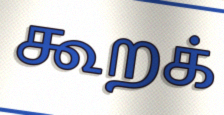
கூறக்